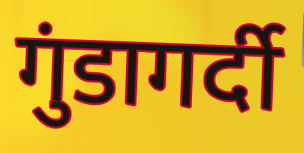
गुंडागर्दी